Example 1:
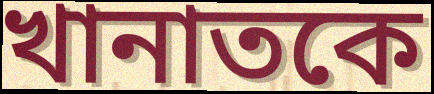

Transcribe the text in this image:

খানাতকে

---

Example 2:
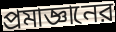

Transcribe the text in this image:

প্রমাজ্ঞানের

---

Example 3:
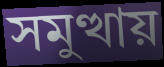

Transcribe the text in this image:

সমুত্থায়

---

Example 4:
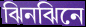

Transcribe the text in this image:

ঝিনঝিনে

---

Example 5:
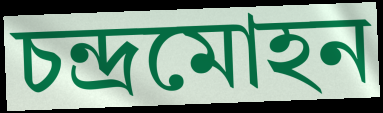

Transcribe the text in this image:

চন্দ্রমোহন